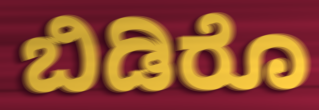
ಬಿಡಿರೊ